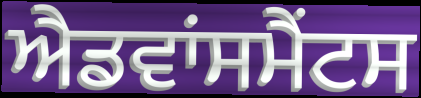
ਐਡਵਾਂਸਮੈਂਟਸ